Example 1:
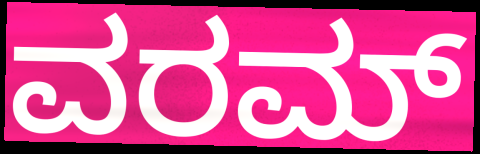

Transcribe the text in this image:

ವರಮ್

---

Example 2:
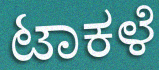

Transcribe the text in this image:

ಟಾಕಳೆ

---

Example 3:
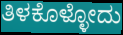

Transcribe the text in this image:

ತಿಳಕೊಳ್ಳೋದು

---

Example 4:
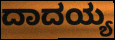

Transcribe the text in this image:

ದಾದಯ್ಯ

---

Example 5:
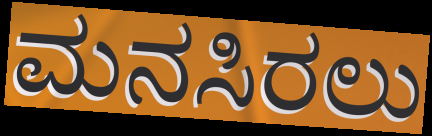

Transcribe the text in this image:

ಮನಸಿರಲು